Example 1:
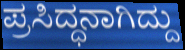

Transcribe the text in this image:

ಪ್ರಸಿದ್ಧನಾಗಿದ್ದು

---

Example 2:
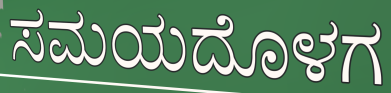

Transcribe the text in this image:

ಸಮಯದೊಳಗ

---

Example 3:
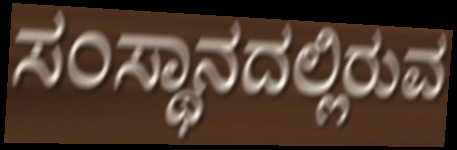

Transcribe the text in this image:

ಸಂಸ್ಥಾನದಲ್ಲಿರುವ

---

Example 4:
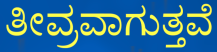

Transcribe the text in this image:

ತೀವ್ರವಾಗುತ್ತವೆ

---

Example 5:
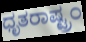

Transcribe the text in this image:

ಧೃತರಾಷ್ಟ್ರಂ